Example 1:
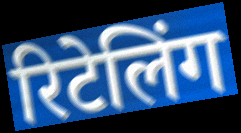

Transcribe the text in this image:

रिटेलिंग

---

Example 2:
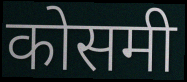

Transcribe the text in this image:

कोसमी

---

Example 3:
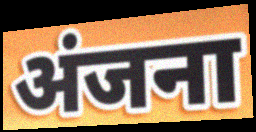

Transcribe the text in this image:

अंजना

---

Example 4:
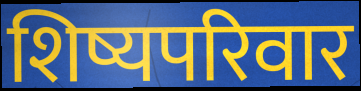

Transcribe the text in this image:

शिष्यपरिवार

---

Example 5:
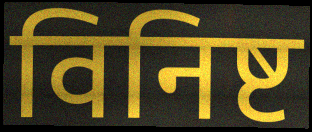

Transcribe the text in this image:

विनिष्ट